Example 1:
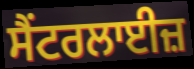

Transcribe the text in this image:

ਸੈਂਟਰਲਾਈਜ਼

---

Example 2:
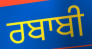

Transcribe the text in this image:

ਰਬਾਬੀ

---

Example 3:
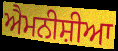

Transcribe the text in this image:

ਐਮਨੀਸ਼ੀਆ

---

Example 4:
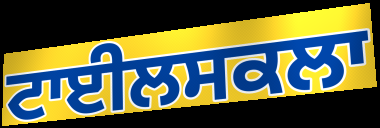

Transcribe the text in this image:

ਟਾਈਲਸਕਲਾ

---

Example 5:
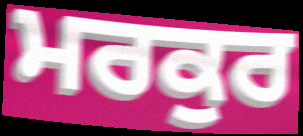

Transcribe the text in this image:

ਮਰਕੁਰ